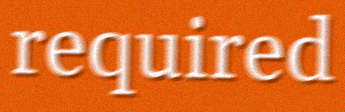
required